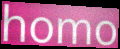
homo